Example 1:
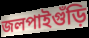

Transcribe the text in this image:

জলপাইগুঁড়ি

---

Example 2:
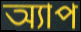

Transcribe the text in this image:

অ্যাপ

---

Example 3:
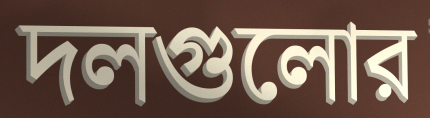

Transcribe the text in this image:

দলগুলোর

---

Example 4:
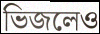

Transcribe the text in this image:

ভিজলেও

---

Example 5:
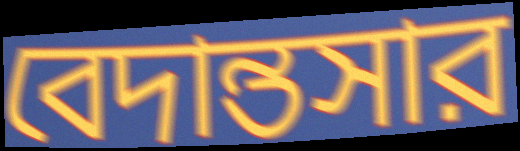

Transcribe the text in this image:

বেদান্তসার